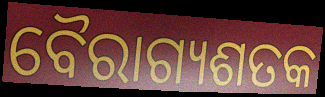
ବୈରାଗ୍ୟଶତକ